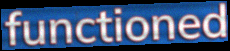
functioned